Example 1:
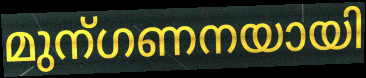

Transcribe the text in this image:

മുന്ഗണനയായി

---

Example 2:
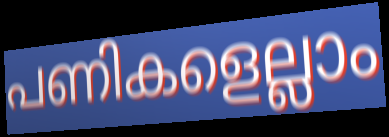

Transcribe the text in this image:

പണികളെല്ലാം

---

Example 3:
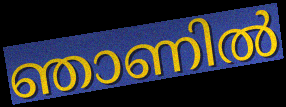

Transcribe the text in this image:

ഞാണിൽ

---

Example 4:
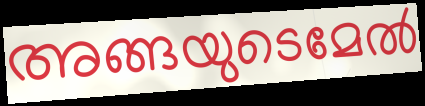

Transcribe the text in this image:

അങ്ങയുടെമേൽ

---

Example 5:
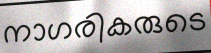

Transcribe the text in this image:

നാഗരികരുടെ